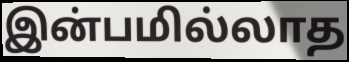
இன்பமில்லாத